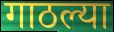
गाठल्या